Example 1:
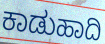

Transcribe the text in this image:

ಕಾಡುಹಾದಿ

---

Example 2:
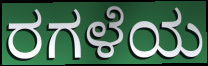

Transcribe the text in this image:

ರಗಳೆಯ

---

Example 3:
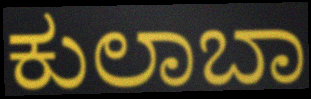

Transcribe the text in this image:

ಕುಲಾಬಾ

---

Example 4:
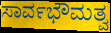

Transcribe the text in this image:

ಸಾರ್ವಭೌಮತ್ವ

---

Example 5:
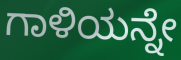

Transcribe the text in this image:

ಗಾಳಿಯನ್ನೇ